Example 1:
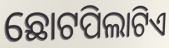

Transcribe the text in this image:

ଛୋଟପିଲାଟିଏ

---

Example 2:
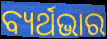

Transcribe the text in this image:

ବ୍ୟର୍ଥଭାର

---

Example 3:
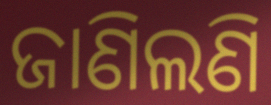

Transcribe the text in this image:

ଜାଣିଲଣି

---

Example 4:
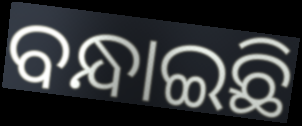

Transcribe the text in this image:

ବନ୍ଧାଇଛି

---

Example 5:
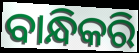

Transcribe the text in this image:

ବାନ୍ଧିକରି